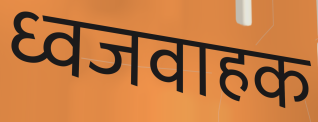
ध्वजवाहक